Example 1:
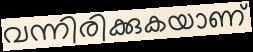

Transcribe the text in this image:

വന്നിരിക്കുകയാണ്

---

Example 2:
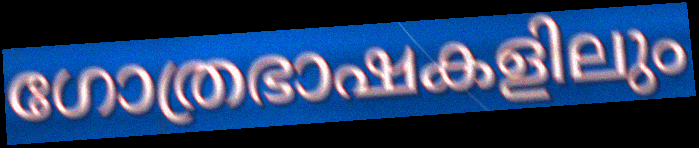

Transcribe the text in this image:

ഗോത്രഭാഷകളിലും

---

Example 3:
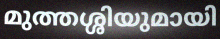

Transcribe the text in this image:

മുത്തശ്ശിയുമായി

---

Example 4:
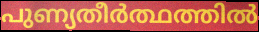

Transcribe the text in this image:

പുണ്യതീർത്ഥത്തിൽ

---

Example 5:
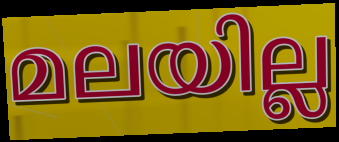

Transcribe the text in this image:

മലയില്ല